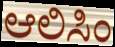
ಆಲಿಸಿಂ